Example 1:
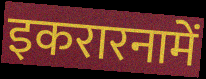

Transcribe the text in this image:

इकरारनामें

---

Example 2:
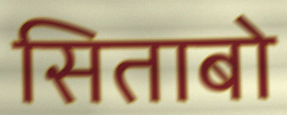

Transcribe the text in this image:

सिताबो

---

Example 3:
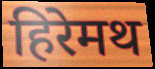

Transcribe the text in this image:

हिरेमथ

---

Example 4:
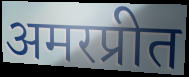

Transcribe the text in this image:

अमरप्रीत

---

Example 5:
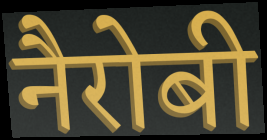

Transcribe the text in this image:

नैरोबी